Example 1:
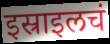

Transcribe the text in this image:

इस्राइलचं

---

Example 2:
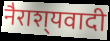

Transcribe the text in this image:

नैराश्यवादी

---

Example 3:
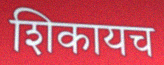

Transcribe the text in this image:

शिकायच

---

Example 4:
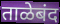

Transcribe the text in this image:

ताळेबंद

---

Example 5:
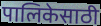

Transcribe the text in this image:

पालिकेसाठी